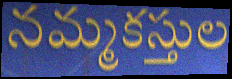
నమ్మకస్తుల